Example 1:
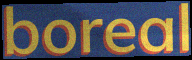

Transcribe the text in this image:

boreal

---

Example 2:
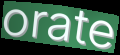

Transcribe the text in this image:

orate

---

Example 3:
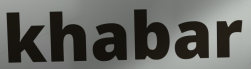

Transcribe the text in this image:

khabar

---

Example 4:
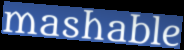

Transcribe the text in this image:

mashable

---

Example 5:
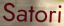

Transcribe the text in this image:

Satori